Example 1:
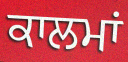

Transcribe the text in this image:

ਕਾਲਮਾਂ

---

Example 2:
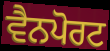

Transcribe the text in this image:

ਵੈਨਪੋਰਟ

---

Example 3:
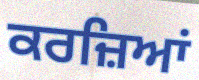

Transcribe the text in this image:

ਕਰਜ਼ਿਆਂ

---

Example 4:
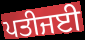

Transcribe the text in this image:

ਪਤੀਜਈ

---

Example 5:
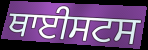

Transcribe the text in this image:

ਥਾਈਸਟਸ